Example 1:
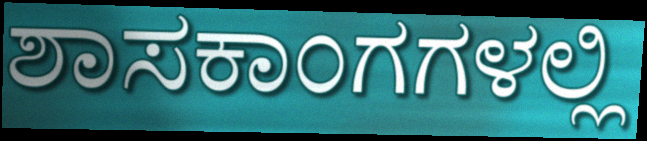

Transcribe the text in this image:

ಶಾಸಕಾಂಗಗಳಲ್ಲಿ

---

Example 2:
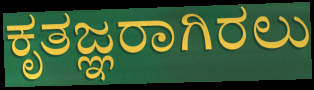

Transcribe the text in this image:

ಕೃತಜ್ಞರಾಗಿರಲು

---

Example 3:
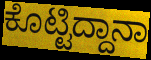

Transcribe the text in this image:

ಕೊಟ್ಟಿದ್ದಾನಾ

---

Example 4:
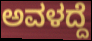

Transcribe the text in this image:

ಅವಳದ್ದೆ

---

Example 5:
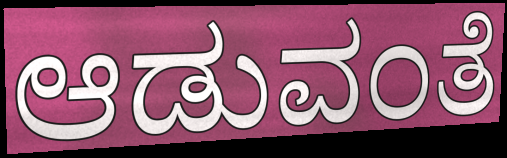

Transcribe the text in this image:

ಆಡುವಂತೆ